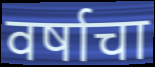
वर्षाचा